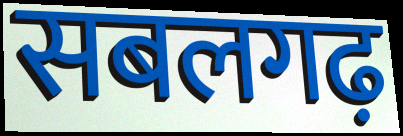
सबलगढ़